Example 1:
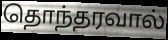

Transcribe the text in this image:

தொந்தரவால்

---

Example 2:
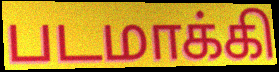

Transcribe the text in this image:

படமாக்கி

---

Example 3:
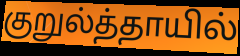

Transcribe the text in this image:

குறுல்த்தாயில்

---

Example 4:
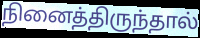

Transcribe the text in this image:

நினைத்திருந்தால்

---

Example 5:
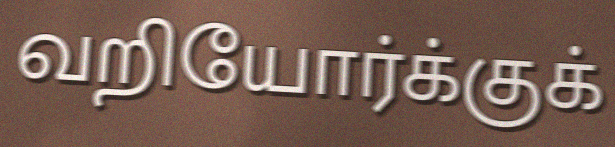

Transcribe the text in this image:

வறியோர்க்குக்